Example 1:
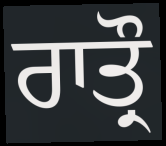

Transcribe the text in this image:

ਰਾਤ੍ਰੌ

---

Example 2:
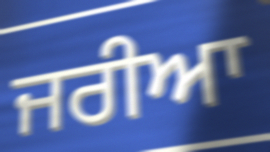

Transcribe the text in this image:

ਜਰੀਆ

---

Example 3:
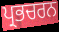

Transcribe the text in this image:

ਪ੍ਰਭਚਰਨ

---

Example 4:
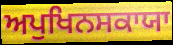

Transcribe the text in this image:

ਅਪੁਖਿਨਸਕਾਯਾ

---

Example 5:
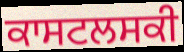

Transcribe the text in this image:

ਕਾਸਟਲਸਕੀ